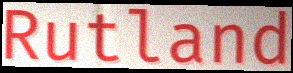
Rutland